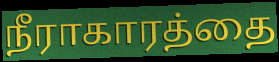
நீராகாரத்தை